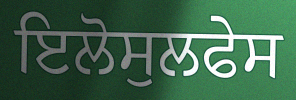
ਇਲੋਸੁਲਫੇਸ